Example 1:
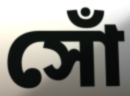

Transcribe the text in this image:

সোঁ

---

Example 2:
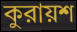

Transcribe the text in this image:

কুরায়শ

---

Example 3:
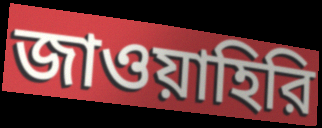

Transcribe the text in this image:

জাওয়াহিরি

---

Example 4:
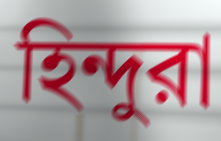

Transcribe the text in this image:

হিন্দুরা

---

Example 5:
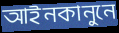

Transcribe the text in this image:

আইনকানুনে